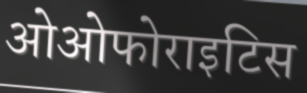
ओओफोराइटिस